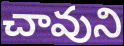
చావుని